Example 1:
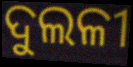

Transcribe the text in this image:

ଦୁଲଳୀ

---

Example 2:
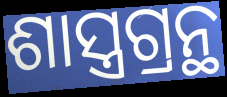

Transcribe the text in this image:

ଶାସ୍ତ୍ରଗ୍ରନ୍ଥ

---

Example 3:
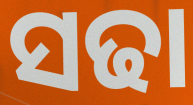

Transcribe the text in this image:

ସଢା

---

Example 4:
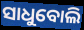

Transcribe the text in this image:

ସାଧୁବୋଲି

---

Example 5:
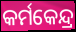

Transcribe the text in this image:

କର୍ମକେନ୍ଦ୍ର